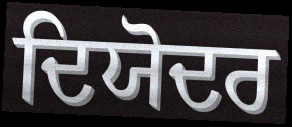
ਦਿਯੋਦਰ